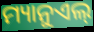
ମ୍ୟାନୁଏଲ୍